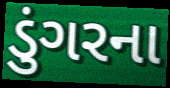
ડુંગરના